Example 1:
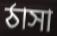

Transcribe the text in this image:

ঠাসা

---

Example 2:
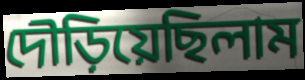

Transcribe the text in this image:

দৌড়িয়েছিলাম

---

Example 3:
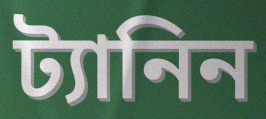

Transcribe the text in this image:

ট্যানিন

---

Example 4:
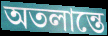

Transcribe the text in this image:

অতলান্তে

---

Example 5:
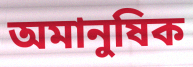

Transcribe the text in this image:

অমানুষিক